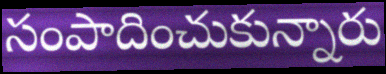
సంపాదించుకున్నారు